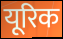
यूरिक